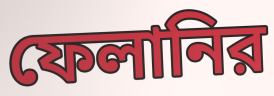
ফেলানির